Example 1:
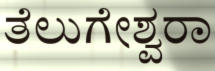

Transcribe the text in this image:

ತೆಲುಗೇಶ್ವರಾ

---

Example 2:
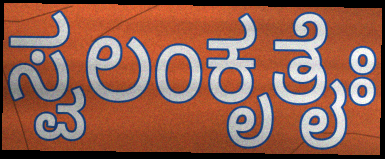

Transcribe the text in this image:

ಸ್ವಲಂಕೃತೈಃ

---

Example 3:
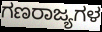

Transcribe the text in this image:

ಗಣರಾಜ್ಯಗಳ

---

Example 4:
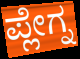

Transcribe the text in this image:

ಪ್ಲೇಗ್ನ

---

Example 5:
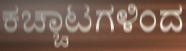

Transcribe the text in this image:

ಕಚ್ಚಾಟಗಳಿಂದ